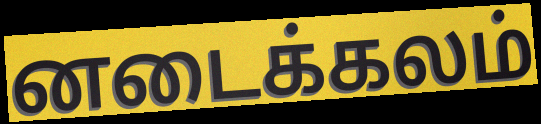
னடைக்கலம்